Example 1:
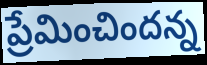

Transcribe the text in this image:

ప్రేమించిందన్న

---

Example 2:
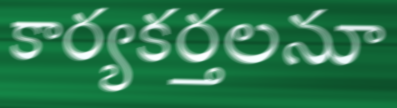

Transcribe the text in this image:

కార్యకర్తలనూ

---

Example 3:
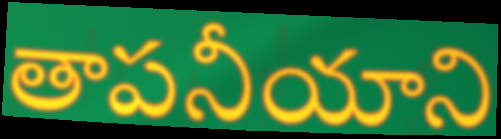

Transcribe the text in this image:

తాపనీయాని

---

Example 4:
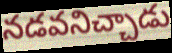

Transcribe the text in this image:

నడవనిచ్చాడు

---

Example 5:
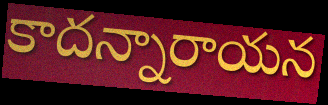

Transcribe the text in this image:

కాదన్నారాయన